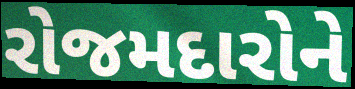
રોજમદારોને